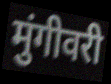
मुंगीवरी